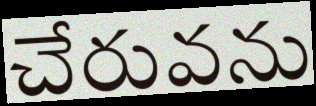
చేరువను